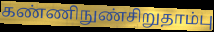
கண்ணிநுண்சிறுதாம்பு